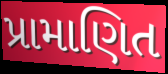
પ્રામાણિત